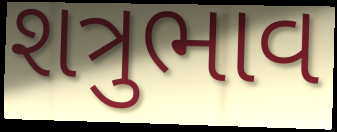
શત્રુભાવ